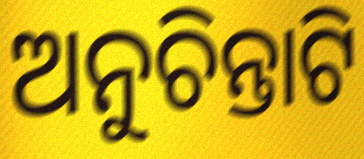
ଅନୁଚିନ୍ତାଟି